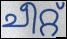
ചീറ്റ്